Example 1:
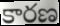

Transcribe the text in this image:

కారణ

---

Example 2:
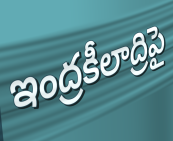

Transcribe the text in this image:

ఇంద్రకీలాద్రిపై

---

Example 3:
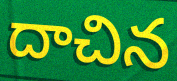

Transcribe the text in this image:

దాచిన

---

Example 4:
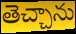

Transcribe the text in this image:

తెచ్చాను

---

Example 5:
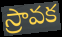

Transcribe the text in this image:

స్రావక